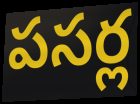
పసర్ల